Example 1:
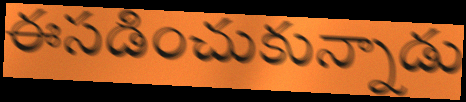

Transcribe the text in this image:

ఈసడించుకున్నాడు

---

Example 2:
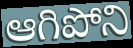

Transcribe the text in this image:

ఆగిపోని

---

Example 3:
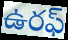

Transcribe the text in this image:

ఉరఫ్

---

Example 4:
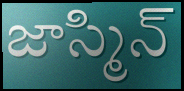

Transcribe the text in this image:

జాస్మిన్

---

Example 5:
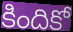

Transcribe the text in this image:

కిందికో